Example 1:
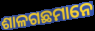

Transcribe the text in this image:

ଶାଳଗଛମାନେ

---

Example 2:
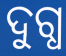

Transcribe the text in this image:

ଦୁଗ୍ଧ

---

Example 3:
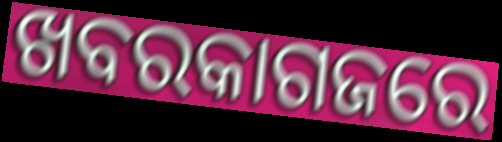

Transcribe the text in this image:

ଖବରକାଗଜରେ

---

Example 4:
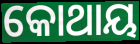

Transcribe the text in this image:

କୋଥାୟ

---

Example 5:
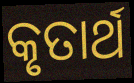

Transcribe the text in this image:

କୃତାର୍ଥ